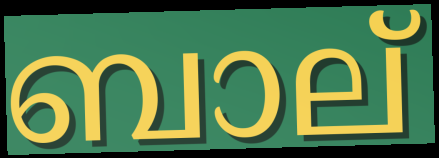
ബാല്